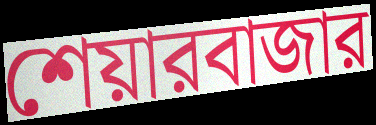
শেয়ারবাজার